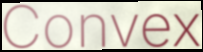
Convex